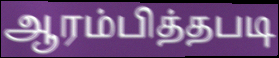
ஆரம்பித்தபடி